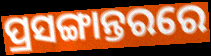
ପ୍ରସଙ୍ଗାନ୍ତରରେ